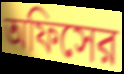
অফিসের